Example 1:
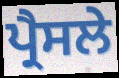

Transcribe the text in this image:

ਪ੍ਰੈਸਲੇ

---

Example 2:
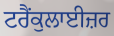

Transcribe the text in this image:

ਟਰੈਂਕੁਲਾਈਜ਼ਰ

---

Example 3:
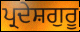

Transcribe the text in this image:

ਪ੍ਰਦੇਸ਼ਗੁਰੂ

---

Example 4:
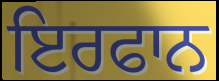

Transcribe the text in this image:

ਇਰਫਾਨ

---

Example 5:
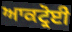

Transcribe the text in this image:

ਆਕਟ੍ਰੋਈ